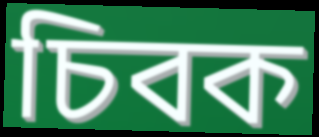
চিবক